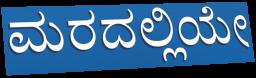
ಮರದಲ್ಲಿಯೇ